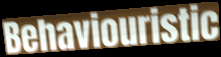
Behaviouristic